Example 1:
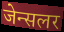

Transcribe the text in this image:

जेन्सलर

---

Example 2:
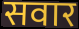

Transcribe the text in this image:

सवार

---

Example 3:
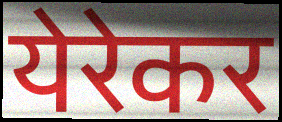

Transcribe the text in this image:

येरेकर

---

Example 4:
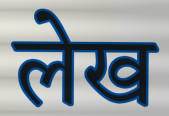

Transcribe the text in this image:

लेख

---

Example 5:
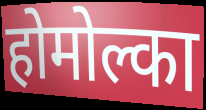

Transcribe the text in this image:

होमोल्का